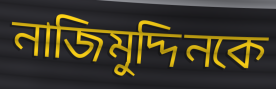
নাজিমুদ্দিনকে